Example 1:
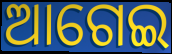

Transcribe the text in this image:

ଆଗେଇ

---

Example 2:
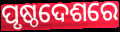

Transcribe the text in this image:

ପୃଷ୍ଠଦେଶରେ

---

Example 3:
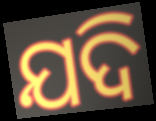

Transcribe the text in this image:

ଯଦି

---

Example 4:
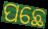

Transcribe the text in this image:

ପଛେ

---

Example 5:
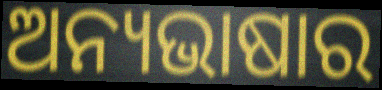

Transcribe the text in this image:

ଅନ୍ୟଭାଷାର